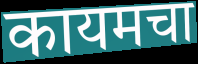
कायमचा